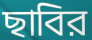
ছাবির